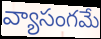
వ్యాసంగమే